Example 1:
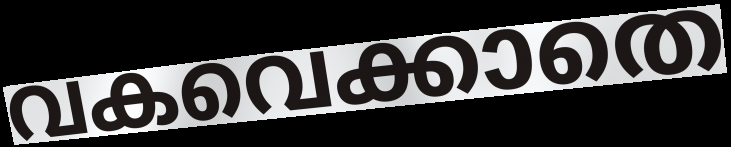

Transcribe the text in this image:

വകവെക്കാതെ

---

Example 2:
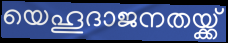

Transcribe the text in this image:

യെഹൂദാജനതയ്ക്ക്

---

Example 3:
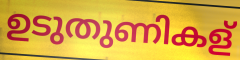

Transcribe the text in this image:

ഉടുതുണികള്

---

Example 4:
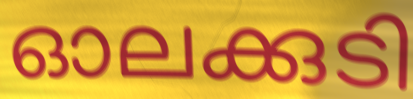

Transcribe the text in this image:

ഓലക്കുടി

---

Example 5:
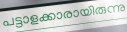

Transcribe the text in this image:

പട്ടാളക്കാരായിരുന്നു